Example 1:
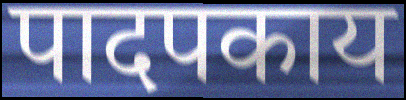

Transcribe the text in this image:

पादपकाय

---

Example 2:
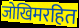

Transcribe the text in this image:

जोखिमरहित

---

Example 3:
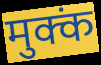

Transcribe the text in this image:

मुक्कं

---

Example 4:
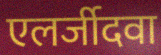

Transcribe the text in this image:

एलर्जीदवा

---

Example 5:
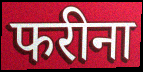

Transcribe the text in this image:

फरीना